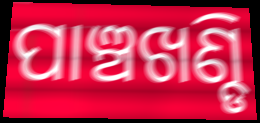
ପାଞ୍ଚଖଣ୍ଡି